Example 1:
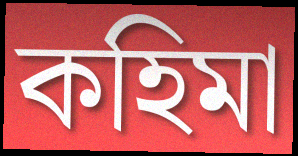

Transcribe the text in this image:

কহিমা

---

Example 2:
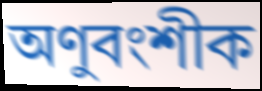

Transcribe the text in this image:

অণুবংশীক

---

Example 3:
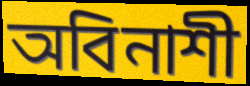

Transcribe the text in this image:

অবিনাশী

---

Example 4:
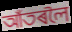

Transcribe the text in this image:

আঁতৰলৈ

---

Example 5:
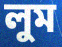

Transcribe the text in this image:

লুম